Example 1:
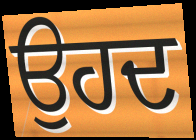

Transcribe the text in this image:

ਉਹਦ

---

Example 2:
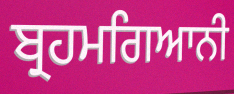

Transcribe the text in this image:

ਬ੍ਰਹਮਗਿਆਨੀ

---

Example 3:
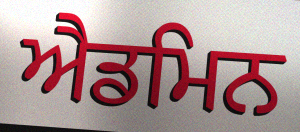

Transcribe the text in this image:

ਐਡਮਿਨ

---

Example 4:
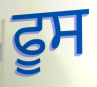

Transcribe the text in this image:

ਫੂਸ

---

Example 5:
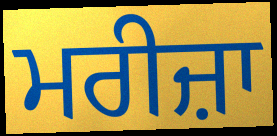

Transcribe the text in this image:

ਮਰੀਜ਼ਾ